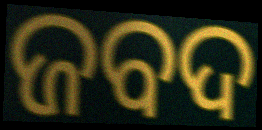
ଜବଦ